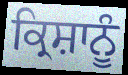
ਕ੍ਰਿਸ਼ਾਨੂੰ